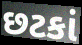
છટકાં